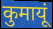
कुमायूं